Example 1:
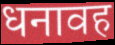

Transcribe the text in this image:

धनावह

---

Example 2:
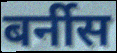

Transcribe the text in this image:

बर्नीस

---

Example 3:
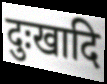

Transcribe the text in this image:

दुःखादि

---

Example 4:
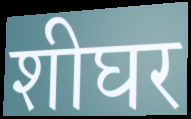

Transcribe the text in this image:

शीघर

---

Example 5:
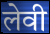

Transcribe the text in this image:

लेवी